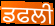
ਡਫਲੀ